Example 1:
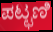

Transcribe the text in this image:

ಪಟ್ಟಣಿ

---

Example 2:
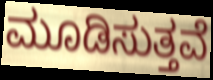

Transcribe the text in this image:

ಮೂಡಿಸುತ್ತವೆ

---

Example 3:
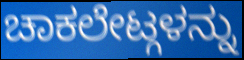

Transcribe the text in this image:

ಚಾಕಲೇಟ್ಗಳನ್ನು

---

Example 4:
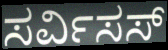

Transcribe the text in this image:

ಸರ್ವಿಸಸ್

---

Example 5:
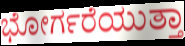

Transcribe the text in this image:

ಭೋರ್ಗರೆಯುತ್ತಾ